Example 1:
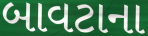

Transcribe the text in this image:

બાવટાના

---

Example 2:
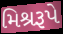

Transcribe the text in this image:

મિશ્રરૂપે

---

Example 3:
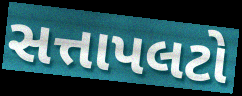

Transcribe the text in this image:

સત્તાપલટો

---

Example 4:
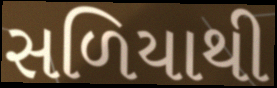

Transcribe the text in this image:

સળિયાથી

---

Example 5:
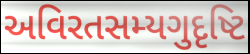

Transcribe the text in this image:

અવિરતસમ્યગુદૃષ્ટિ